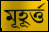
মূহূর্ত্ত